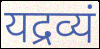
यद्रव्यं